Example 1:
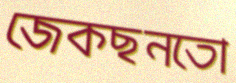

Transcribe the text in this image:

জেকছনতো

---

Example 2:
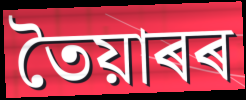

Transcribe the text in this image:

তৈয়াৰৰ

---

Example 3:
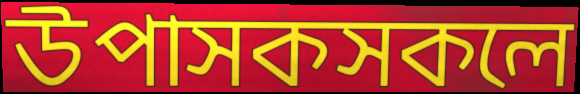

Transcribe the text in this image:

উপাসকসকলে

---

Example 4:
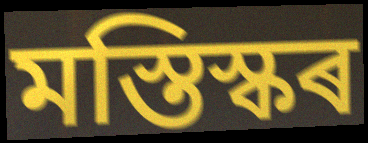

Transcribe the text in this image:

মস্তিস্কৰ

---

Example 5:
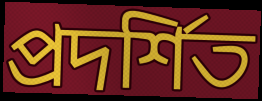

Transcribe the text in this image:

প্ৰদৰ্শিত